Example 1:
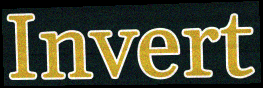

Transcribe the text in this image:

Invert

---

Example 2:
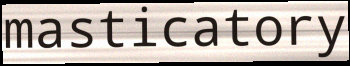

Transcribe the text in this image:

masticatory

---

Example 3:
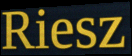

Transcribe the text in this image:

Riesz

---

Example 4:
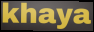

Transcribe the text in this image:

khaya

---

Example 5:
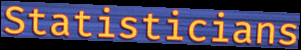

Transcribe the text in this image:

Statisticians